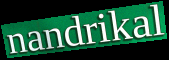
nandrikal